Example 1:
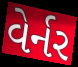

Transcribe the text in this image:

વેર્નર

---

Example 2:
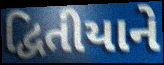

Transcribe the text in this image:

દ્વિતીયાને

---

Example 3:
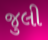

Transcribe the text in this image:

જુલી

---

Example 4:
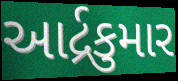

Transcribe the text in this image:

આર્દ્રકુમાર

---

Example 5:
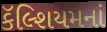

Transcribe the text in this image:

કૅલ્શિયમનાં